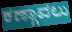
ಕಣ್ಗಾವಲು